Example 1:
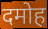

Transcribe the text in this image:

दमोह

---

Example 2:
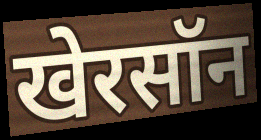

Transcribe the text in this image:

खेरसॉन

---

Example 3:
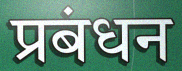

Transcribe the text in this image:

प्रबंधन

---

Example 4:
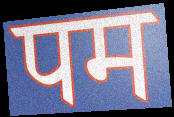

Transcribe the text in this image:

पम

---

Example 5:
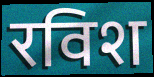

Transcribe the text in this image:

रविश